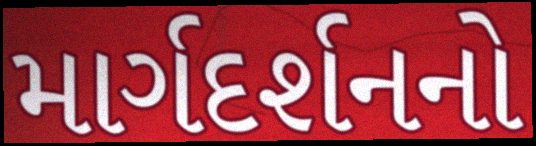
માર્ગદર્શનનો